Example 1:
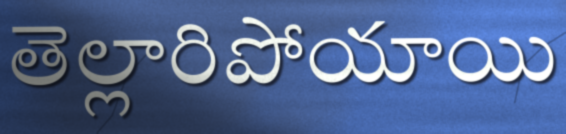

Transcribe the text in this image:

తెల్లారిపోయాయి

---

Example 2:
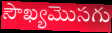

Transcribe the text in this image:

సౌఖ్యమొసగు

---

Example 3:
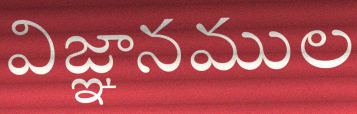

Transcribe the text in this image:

విజ్ఞానముల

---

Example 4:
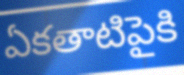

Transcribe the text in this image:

ఏకతాటిపైకి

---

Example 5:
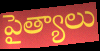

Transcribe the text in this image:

పైత్యాలు